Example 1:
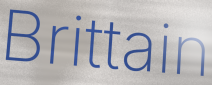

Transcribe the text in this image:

Brittain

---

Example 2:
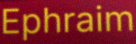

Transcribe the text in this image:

Ephraim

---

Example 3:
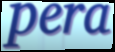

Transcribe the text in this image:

pera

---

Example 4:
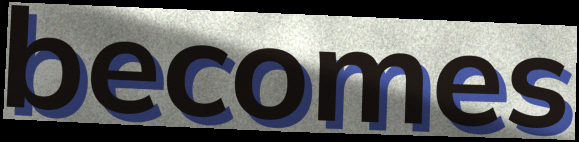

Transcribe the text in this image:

becomes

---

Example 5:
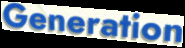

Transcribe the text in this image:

Generation